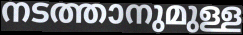
നടത്താനുമുള്ള